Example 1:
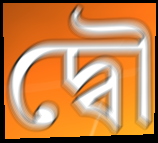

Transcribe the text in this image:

দ্বৌ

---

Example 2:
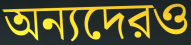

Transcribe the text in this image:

অন্যদেরও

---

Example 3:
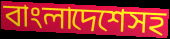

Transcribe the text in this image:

বাংলাদেশেসহ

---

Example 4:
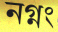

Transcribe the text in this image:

নগ্নং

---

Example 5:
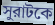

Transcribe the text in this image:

সুরাটকে